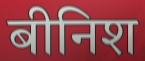
बीनिश